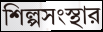
শিল্পসংস্থার